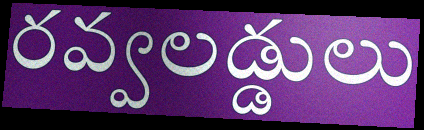
రవ్వలడ్డులు